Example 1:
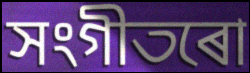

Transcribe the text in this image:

সংগীতৰো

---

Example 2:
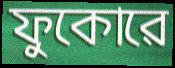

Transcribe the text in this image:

ফুকোৱে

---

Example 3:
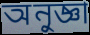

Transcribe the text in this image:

অনুজ্ঞা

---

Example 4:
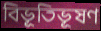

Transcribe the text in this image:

বিভূতিভূষণ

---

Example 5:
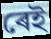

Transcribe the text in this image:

ৰেই